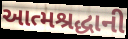
આત્મશ્રદ્ધાની